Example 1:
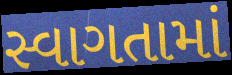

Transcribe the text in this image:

સ્વાગતામાં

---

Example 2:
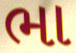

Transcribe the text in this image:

ભા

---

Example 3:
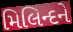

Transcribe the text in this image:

મિલિન્દને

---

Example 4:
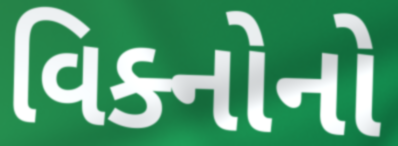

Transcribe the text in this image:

વિક્નોનો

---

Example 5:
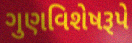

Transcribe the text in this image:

ગુણવિશેષરૂપે